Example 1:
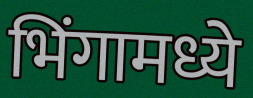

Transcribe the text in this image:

भिंगामध्ये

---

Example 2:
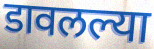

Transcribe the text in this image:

डावलल्या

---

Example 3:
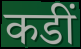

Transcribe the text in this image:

कडीं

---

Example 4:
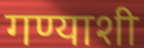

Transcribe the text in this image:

गण्याशी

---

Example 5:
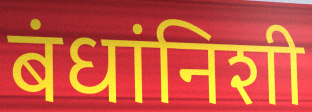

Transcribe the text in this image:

बंधांनिशी